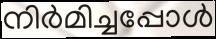
നിർമിച്ചപ്പോൾ